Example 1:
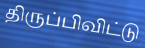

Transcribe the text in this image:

திருப்பிவிட்டு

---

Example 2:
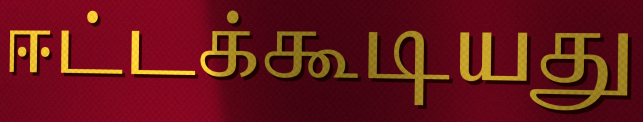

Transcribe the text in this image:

ஈட்டக்கூடியது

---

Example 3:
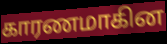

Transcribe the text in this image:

காரணமாகின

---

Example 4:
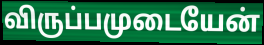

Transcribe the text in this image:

விருப்பமுடையேன்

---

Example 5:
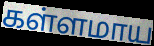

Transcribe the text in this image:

கள்ளமாய